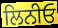
ਲਿਨੀਓ